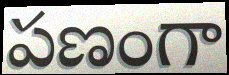
పణంగా